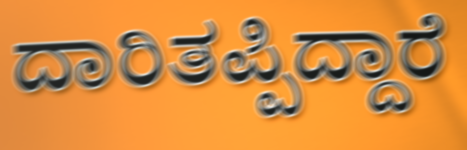
ದಾರಿತಪ್ಪಿದ್ದಾರೆ